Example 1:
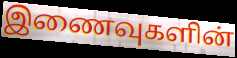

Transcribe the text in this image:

இணைவுகளின்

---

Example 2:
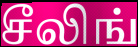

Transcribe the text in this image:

சீலிங்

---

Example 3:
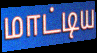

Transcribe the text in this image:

மாட்டிய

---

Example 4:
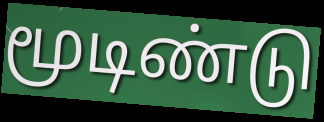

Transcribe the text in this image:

மூடிண்டு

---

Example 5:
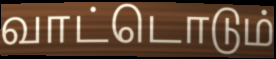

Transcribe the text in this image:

வாட்டொடும்